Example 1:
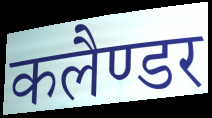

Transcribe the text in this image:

कलैण्डर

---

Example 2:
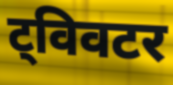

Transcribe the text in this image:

ट्विवटर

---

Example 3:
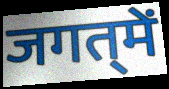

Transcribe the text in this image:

जगत्‌में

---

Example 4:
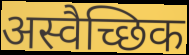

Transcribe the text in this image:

अस्वैच्छिक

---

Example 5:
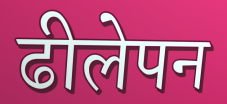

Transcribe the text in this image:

ढीलेपन